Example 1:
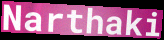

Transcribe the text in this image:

Narthaki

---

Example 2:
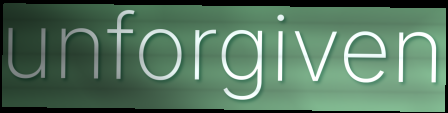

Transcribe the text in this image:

unforgiven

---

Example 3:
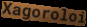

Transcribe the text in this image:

Xagoroloi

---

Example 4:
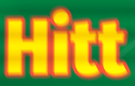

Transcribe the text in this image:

Hitt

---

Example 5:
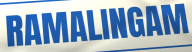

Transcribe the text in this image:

RAMALINGAM